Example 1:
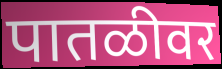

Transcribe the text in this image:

पातळीवर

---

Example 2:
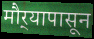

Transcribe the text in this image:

मौर्यापासून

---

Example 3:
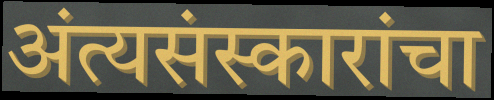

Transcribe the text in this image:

अंत्यसंस्कारांचा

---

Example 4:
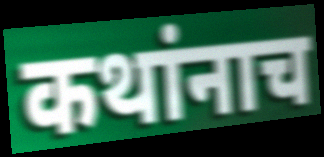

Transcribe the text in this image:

कथांनाच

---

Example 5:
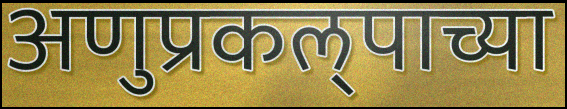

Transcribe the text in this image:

अणुप्रकल्पाच्या